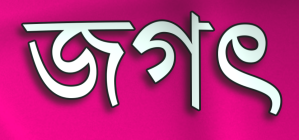
জগৎ